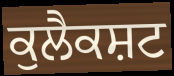
ਕੁਲੈਕਸ਼ਟ